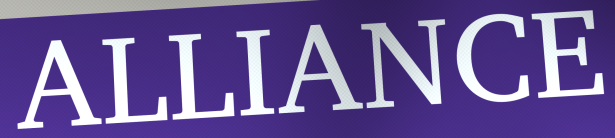
ALLIANCE